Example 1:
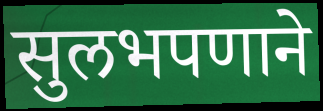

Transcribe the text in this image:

सुलभपणाने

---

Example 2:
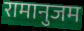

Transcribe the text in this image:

रामानुजम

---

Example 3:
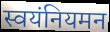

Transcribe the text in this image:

स्वयंनियमन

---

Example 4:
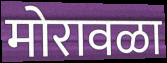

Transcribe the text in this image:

मोरावळा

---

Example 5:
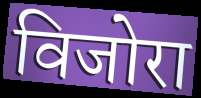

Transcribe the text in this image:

विजोरा